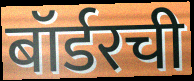
बॉर्डरची